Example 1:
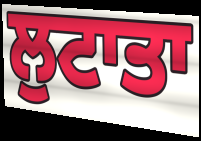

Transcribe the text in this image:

ਲੁਟਾਤਾ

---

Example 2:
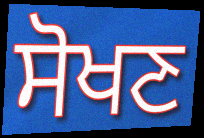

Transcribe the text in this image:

ਸੋਖਣ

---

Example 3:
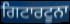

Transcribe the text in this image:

ਗਿਟਾਰਟੂਨਾ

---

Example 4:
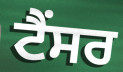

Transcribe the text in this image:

ਟੈਂਸਰ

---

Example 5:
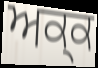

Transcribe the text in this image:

ਅਕ੍ਕ